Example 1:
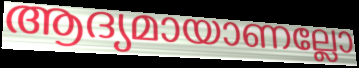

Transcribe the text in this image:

ആദ്യമായാണല്ലോ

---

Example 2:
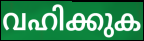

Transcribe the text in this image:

വഹിക്കുക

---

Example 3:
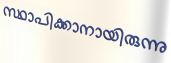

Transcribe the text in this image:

സ്ഥാപിക്കാനായിരുന്നു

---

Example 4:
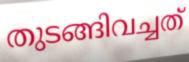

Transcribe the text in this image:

തുടങ്ങിവച്ചത്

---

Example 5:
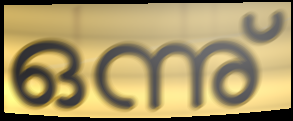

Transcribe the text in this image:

ഒന്നു്